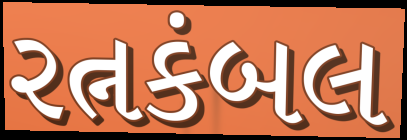
રત્નકંબલ